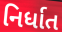
નિર્ધાત